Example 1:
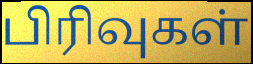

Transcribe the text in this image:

பிரிவுகள்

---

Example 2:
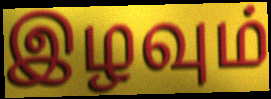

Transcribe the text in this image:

இழவும்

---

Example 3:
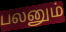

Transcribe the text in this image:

பலனும்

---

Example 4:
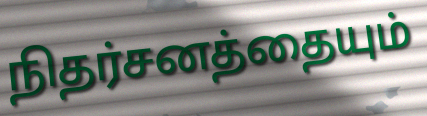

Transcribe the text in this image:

நிதர்சனத்தையும்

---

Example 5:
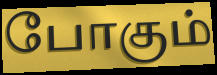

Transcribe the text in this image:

போகும்